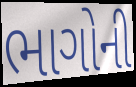
ભાગોની